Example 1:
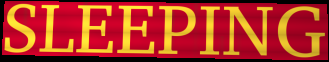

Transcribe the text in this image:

SLEEPING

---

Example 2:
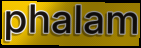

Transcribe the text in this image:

phalam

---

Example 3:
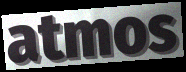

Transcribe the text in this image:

atmos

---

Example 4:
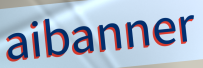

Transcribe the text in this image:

aibanner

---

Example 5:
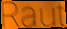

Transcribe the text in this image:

Raut